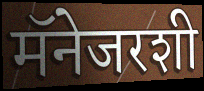
मॅनेजरशी